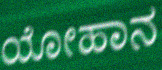
ಯೋಹಾನ